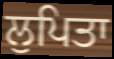
ਲੁਪਿਤਾ